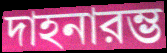
দাহনারম্ভ